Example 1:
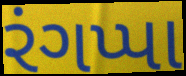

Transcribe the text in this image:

રંગપ્પા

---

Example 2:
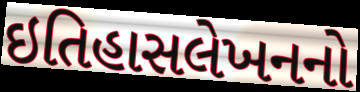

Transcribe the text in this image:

ઇતિહાસલેખનનો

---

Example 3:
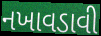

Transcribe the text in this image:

નખાવડાવી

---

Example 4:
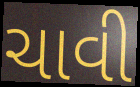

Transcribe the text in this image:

ચાવી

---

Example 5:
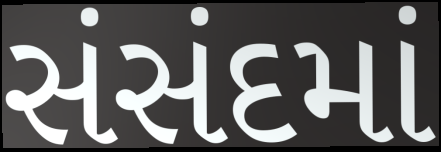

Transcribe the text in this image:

સંસંદમાં